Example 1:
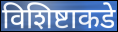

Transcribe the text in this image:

विशिष्टाकडे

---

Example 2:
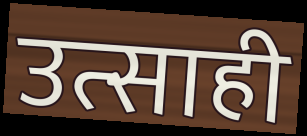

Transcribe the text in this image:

उत्साही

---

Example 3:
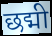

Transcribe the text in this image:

छद्मी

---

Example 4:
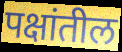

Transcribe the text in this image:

पक्षांतील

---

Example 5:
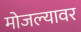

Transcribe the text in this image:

मोजल्यावर